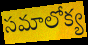
సమాలోక్య